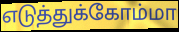
எடுத்துக்கோம்மா